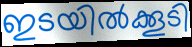
ഇടയിൽക്കൂടി